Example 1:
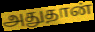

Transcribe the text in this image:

அதுதான்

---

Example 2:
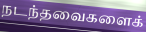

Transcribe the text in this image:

நடந்தவைகளைக்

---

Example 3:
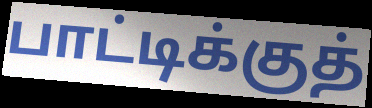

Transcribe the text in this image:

பாட்டிக்குத்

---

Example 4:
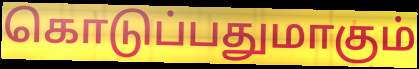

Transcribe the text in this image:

கொடுப்பதுமாகும்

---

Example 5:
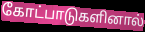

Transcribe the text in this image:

கோட்பாடுகளினால்